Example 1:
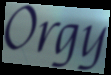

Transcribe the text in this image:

Orgy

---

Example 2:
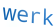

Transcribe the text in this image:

werk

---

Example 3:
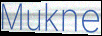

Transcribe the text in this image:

Mukne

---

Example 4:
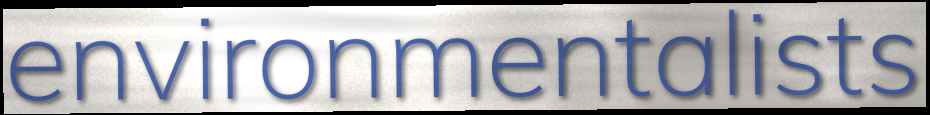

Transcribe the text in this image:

environmentalists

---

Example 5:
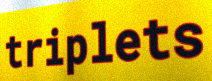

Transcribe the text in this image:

triplets